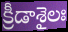
క్రీడాశైలః